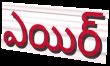
ఎయిర్